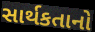
સાર્થકતાનો